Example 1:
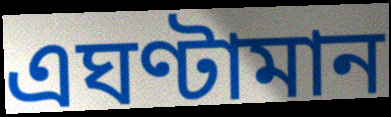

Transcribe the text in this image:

এঘণ্টামান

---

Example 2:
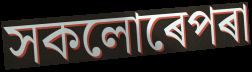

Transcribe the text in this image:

সকলোৰেপৰা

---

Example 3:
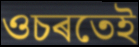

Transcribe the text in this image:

ওচৰতেই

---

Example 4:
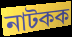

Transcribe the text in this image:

নাটকক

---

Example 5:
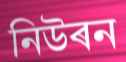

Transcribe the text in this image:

নিউৰন